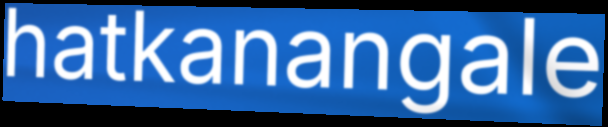
hatkanangale